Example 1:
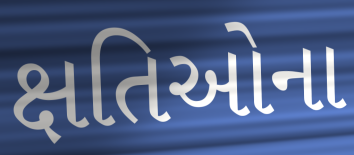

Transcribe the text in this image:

ક્ષતિઓના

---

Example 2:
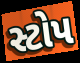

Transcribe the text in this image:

સ્ટોપ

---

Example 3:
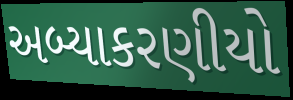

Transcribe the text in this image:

અબ્યાકરણીયો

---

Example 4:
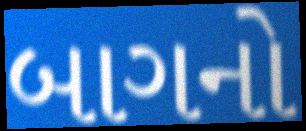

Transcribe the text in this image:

બાગનો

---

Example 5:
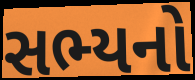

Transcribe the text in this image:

સભ્યનો